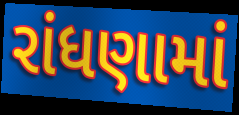
રાંધણામાં